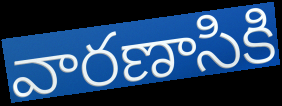
వారణాసికి